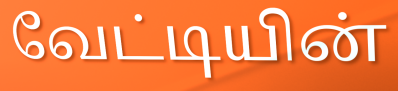
வேட்டியின்